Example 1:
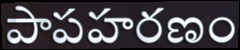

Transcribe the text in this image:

పాపహరణం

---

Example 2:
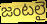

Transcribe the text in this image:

జంటలై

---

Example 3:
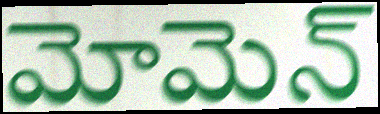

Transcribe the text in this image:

మోమెన్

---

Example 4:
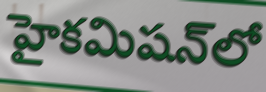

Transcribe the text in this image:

హైకమిషన్‌లో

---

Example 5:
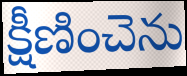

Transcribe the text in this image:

క్షీణించెను